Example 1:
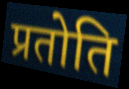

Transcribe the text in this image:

प्रतोति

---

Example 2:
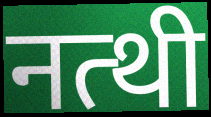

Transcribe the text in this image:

नत्‍थी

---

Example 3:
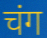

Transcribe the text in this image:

चंग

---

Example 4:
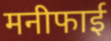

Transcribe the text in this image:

मनीफाई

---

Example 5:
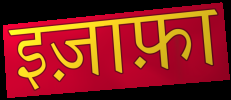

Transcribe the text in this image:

इज़ाफ़ा